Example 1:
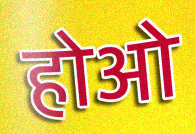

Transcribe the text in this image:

होओ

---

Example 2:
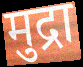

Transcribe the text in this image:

मुद्रा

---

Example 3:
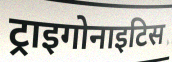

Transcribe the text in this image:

ट्राइगोनाइटिस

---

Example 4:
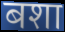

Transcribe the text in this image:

बशा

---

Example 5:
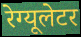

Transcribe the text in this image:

रेग्यूलेटर